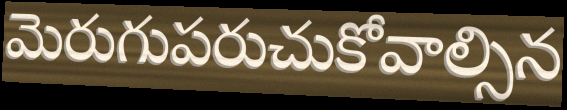
మెరుగుపరుచుకోవాల్సిన